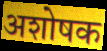
अशोषक